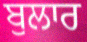
ਬੁਲਾਰ